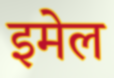
इमेल